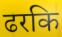
ढरकि